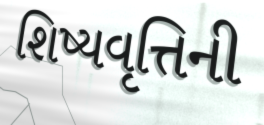
શિષ્યવૃત્તિની